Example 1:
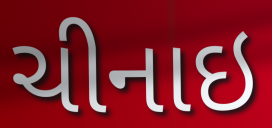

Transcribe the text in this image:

ચીનાઇ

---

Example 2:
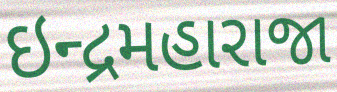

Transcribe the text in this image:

ઇન્દ્રમહારાજા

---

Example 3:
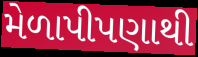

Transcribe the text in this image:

મેળાપીપણાથી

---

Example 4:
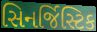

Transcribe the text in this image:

સિનર્જિસ્ટિક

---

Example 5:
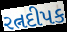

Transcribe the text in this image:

રત્નદીપક